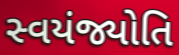
સ્વયંજ્યોતિ